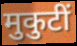
मुकुटीं